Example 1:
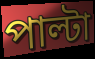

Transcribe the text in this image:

পাল্টা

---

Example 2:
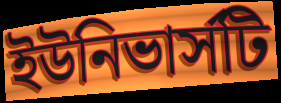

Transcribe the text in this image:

ইউনিভার্সটি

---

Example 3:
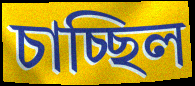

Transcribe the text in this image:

চাচ্ছিল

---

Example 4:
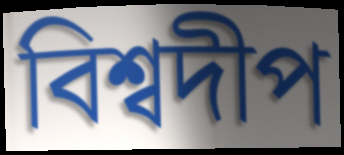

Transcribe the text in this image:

বিশ্বদীপ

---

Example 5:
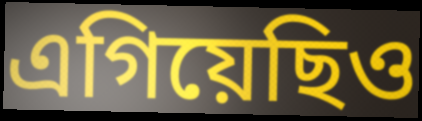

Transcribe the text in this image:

এগিয়েছিও